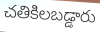
చతికిలబడ్డారు